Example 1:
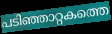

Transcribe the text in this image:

പടിഞ്ഞാറ്റകത്തെ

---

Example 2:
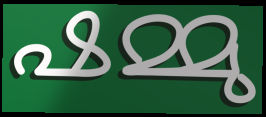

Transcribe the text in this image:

ഷമ്മു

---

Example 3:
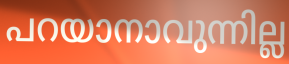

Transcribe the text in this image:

പറയാനാവുന്നില്ല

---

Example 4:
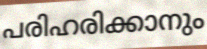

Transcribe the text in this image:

പരിഹരിക്കാനും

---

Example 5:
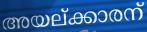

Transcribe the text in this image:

അയല്ക്കാരന്